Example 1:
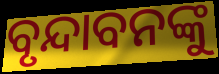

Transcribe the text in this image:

ବୃନ୍ଦାବନଙ୍କୁ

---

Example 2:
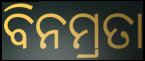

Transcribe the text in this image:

ବିନମ୍ରତା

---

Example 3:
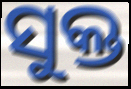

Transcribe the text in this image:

ସୁକ୍ତ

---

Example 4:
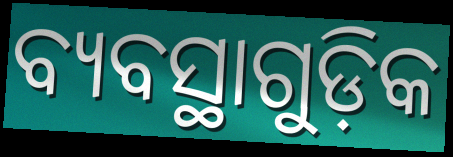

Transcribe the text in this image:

ବ୍ୟବସ୍ଥାଗୁଡ଼ିକ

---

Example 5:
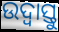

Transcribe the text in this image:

ଉଦ୍ବାସ୍ତୁ